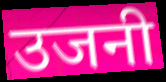
उजनी